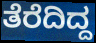
ತೆರೆದಿದ್ದ